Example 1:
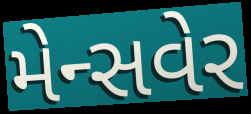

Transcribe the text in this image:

મેન્સવેર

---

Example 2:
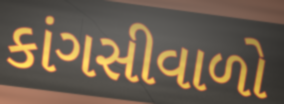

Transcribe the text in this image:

કાંગસીવાળો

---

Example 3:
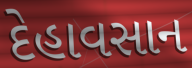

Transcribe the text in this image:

દેહાવસાન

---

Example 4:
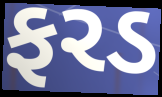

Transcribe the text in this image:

ફરડ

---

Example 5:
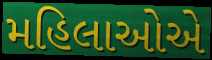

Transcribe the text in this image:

મહિલાઓએ